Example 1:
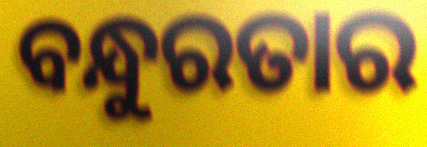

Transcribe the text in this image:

ବନ୍ଧୁରତାର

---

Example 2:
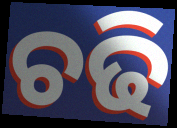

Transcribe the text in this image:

ଚଢି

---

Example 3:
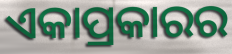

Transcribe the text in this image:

ଏକାପ୍ରକାରର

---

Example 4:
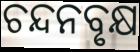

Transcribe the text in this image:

ଚନ୍ଦନବୃକ୍ଷ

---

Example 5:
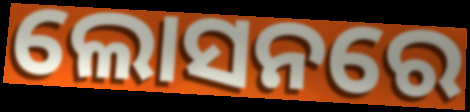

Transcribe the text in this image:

ଲୋସନରେ